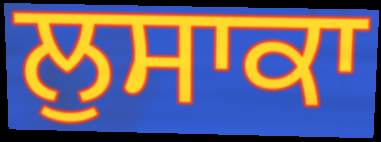
ਲੁਸਾਕਾ